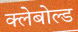
क्लेबोल्ड